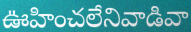
ఊహించలేనివాడివా